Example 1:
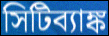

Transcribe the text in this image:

সিটিব্যাঙ্ক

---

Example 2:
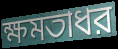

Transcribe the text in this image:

ক্ষমতাধর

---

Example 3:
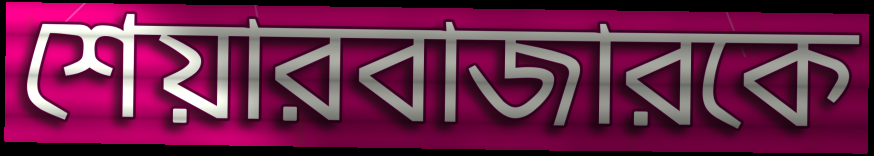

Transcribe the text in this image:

শেয়ারবাজারকে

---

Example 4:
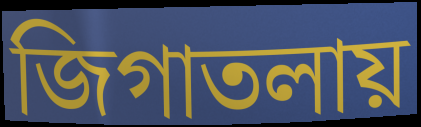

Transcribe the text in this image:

জিগাতলায়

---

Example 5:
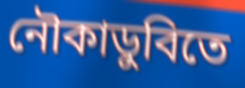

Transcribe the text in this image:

নৌকাডুবিতে